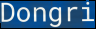
Dongri